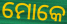
ମୋକେ